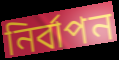
নির্বাপন